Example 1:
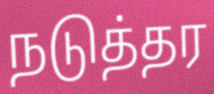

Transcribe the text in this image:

நடுத்தர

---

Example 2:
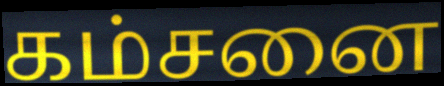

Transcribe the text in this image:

கம்சனை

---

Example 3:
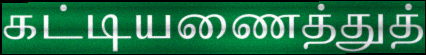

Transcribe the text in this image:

கட்டியணைத்துத்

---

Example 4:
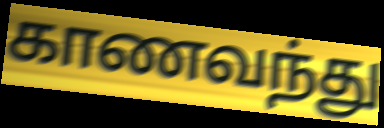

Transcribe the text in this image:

காணவந்து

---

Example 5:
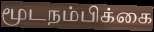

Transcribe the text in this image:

மூடநம்பிக்கை